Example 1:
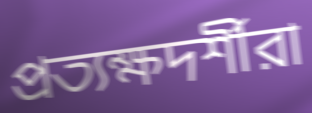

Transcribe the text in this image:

প্রত্যক্ষদর্শীরা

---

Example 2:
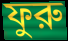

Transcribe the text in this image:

ফুরু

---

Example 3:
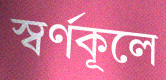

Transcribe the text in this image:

স্বর্ণকূলে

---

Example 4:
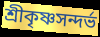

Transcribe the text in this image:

শ্রীকৃষ্ণসন্দর্ভ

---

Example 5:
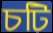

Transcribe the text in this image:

চটি